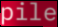
pile